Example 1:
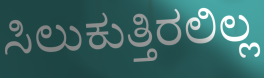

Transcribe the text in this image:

ಸಿಲುಕುತ್ತಿರಲಿಲ್ಲ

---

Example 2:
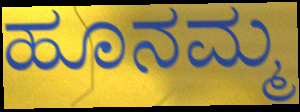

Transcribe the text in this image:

ಹೂನಮ್ಮ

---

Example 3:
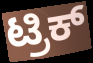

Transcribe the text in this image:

ಟ್ರಿಕ್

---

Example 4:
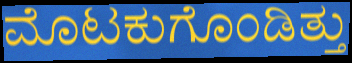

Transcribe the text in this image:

ಮೊಟಕುಗೊಂಡಿತ್ತು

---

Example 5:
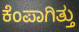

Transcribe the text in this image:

ಕೆಂಪಾಗಿತ್ತು